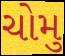
ચોમુ